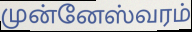
முன்னேஸ்வரம்